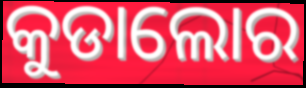
କୁଡାଲୋର